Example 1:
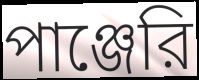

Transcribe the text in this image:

পাঞ্জেরি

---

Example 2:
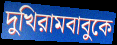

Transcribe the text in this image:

দুখিরামবাবুকে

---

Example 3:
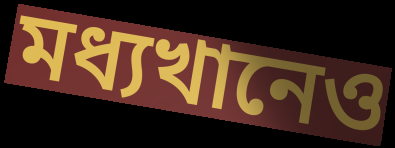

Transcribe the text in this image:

মধ্যখানেও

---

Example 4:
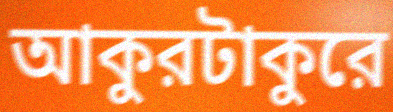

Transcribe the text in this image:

আকুরটাকুরে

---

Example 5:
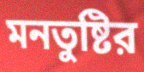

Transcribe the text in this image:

মনতুষ্টির